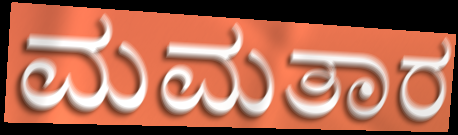
ಮಮತಾರ